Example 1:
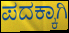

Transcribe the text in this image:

ಪದಕ್ಕಾಗಿ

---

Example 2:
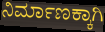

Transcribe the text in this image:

ನಿರ್ಮಾಣಕ್ಕಾಗಿ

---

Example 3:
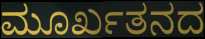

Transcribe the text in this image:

ಮೂರ್ಖತನದ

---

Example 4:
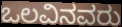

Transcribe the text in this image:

ಒಲವಿನವರು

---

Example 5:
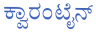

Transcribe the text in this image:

ಕ್ವಾರಂಟೈನ್